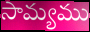
సామ్యము